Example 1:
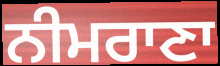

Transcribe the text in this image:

ਨੀਮਰਾਣਾ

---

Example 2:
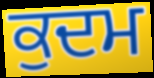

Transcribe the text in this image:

ਕੁਦਮ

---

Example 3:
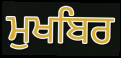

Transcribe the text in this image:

ਮੁਖਬਿਰ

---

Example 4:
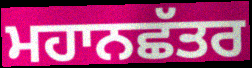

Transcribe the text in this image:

ਮਹਾਨਛੱਤਰ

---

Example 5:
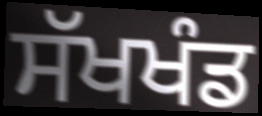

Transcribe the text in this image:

ਸੱਖਖੰਡ